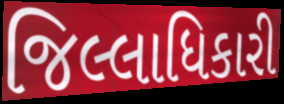
જિલ્લાધિકારી